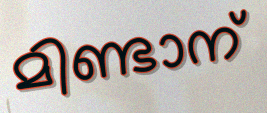
മിണ്ടാന്